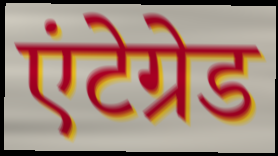
एंटेग्रेड